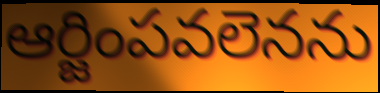
ఆర్జింపవలెనను